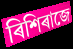
ৰিশিৰাজে